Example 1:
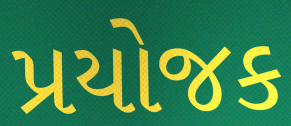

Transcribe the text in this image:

પ્રયોજક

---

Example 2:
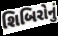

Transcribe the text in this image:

શિબિરોનું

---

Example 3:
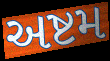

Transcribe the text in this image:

અષ્ટમ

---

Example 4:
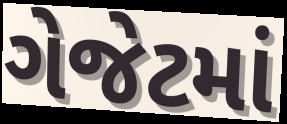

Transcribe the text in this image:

ગેજેટમાં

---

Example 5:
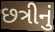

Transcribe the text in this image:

છત્રીનું